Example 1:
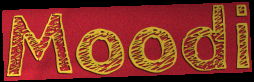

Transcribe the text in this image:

Moodi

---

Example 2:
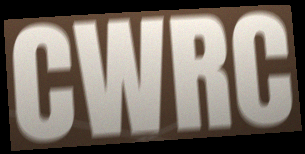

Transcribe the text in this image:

CWRC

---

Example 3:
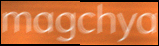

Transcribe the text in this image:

magchya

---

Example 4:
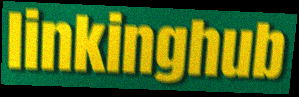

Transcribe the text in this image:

linkinghub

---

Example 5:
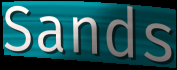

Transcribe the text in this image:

Sands